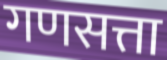
गणसत्ता